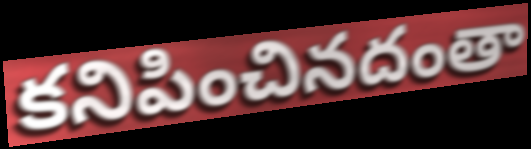
కనిపించినదంతా